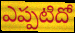
ఎప్పటిదో